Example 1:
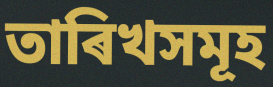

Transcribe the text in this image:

তাৰিখসমূহ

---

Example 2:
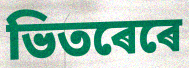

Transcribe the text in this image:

ভিতৰেৰে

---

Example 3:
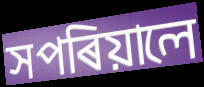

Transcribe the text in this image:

সপৰিয়ালে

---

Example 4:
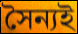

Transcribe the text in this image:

সৈন্যই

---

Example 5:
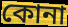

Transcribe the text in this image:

কোনা